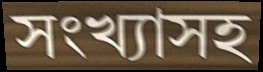
সংখ্যাসহ